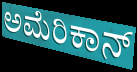
ಅಮೆರಿಕಾನ್